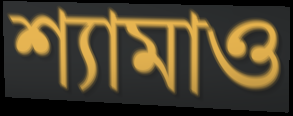
শ্যামাও